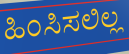
ಹಿಂಸಿಸಲಿಲ್ಲ